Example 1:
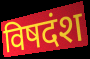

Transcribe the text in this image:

विषदंश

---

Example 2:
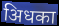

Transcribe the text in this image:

अिधका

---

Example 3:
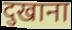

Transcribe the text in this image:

दुखाना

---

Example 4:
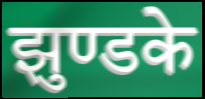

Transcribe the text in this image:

झुण्डके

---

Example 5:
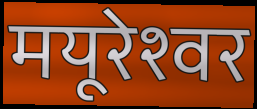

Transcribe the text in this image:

मयूरेश्वर